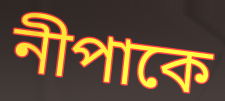
নীপাকে